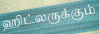
ஹிட்லருக்கும்